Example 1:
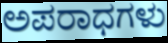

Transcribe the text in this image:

ಅಪರಾಧಗಳು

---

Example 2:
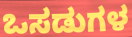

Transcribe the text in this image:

ಒಸಡುಗಳ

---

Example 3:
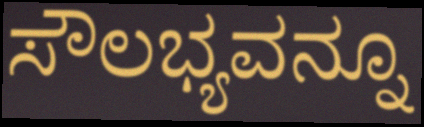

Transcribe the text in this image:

ಸೌಲಭ್ಯವನ್ನೂ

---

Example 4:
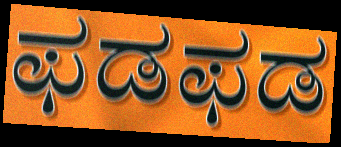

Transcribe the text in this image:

ಫಡಫಡ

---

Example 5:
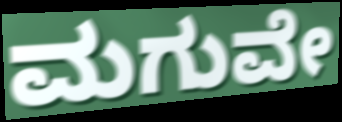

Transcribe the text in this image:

ಮಗುವೇ